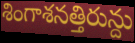
శింగాశనత్తిరున్దు